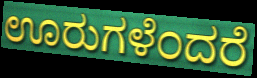
ಊರುಗಳೆಂದರೆ